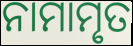
ନାମାମୃତ